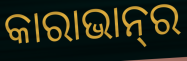
କାରାଭାନ୍‍ର